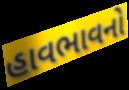
હાવભાવનો